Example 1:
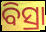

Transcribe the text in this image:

ବିସ୍ରା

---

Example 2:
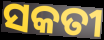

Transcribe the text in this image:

ସକତୀ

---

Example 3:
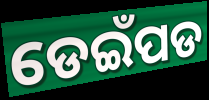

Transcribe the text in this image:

ଡେଇଁପଡ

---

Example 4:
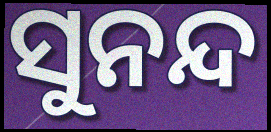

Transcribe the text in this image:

ସୁନନ୍ଦ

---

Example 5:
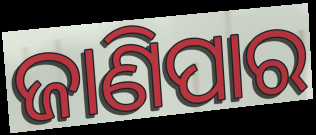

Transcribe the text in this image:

ଜାଣିପାର